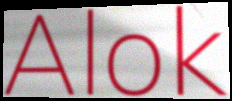
Alok